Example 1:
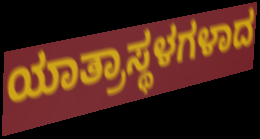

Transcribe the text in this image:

ಯಾತ್ರಾಸ್ಥಳಗಳಾದ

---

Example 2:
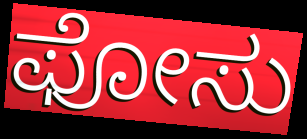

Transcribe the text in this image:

ಫೋಸು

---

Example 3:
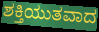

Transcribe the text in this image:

ಶಕ್ತಿಯುತವಾದ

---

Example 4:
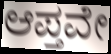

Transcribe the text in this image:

ಆಪ್ತವೇ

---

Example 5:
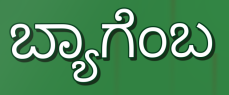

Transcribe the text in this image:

ಬ್ಯಾಗೆಂಬ